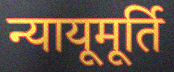
न्यायूमूर्ति